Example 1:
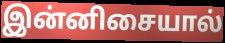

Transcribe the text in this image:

இன்னிசையால்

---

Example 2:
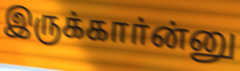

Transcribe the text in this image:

இருக்கார்ன்னு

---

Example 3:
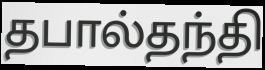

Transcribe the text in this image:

தபால்தந்தி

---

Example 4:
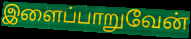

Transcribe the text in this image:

இளைப்பாறுவேன்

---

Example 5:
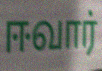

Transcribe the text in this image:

ஈவார்